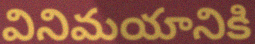
వినిమయానికి